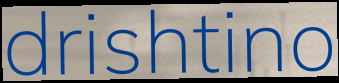
drishtino